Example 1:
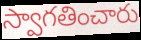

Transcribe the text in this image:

స్వాగతించారు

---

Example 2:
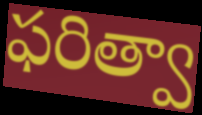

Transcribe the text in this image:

ఫరిత్వా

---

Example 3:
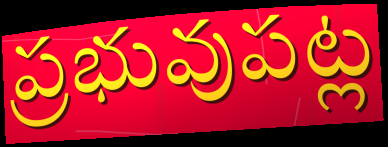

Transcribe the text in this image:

ప్రభువుపట్ల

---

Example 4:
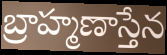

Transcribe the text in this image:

బ్రాహ్మణాస్తేన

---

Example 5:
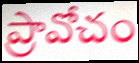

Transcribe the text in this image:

ప్రావోచం